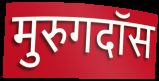
मुरुगदॉस